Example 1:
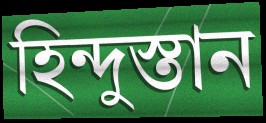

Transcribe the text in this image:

হিন্দুস্তান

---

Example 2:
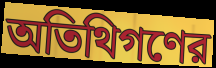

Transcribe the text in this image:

অতিথিগণের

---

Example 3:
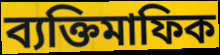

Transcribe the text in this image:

ব্যক্তিমাফিক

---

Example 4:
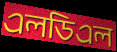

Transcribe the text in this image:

এলডিএল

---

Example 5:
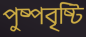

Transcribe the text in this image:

পুষ্পবৃষ্টি